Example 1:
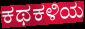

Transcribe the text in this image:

ಕಥಕಳಿಯ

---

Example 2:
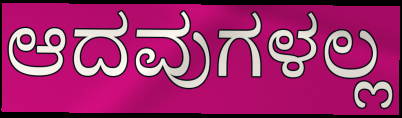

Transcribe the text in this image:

ಆದವುಗಳಲ್ಲ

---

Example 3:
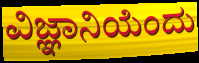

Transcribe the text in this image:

ವಿಜ್ಞಾನಿಯೆಂದು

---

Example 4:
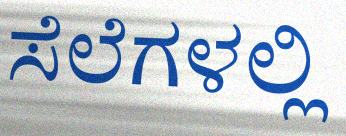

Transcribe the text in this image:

ಸೆಲೆಗಳಲ್ಲಿ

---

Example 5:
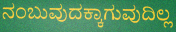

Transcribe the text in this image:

ನಂಬುವುದಕ್ಕಾಗುವುದಿಲ್ಲ